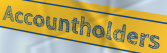
Accountholders